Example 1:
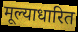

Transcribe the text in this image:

मूल्याधारित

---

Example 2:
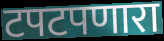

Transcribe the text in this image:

टपटपणारा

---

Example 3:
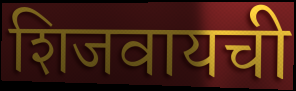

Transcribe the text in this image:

शिजवायची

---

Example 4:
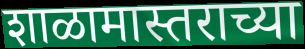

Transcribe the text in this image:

शाळामास्तराच्या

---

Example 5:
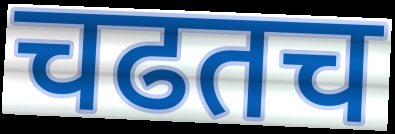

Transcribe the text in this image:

चढतच